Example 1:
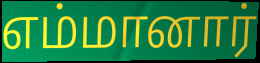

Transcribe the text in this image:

எம்மானார்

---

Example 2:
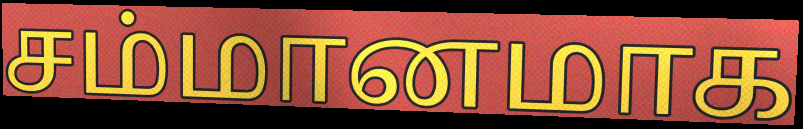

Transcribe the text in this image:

சம்மானமாக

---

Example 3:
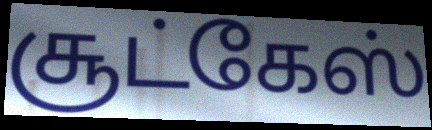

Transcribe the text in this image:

சூட்கேஸ்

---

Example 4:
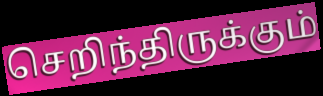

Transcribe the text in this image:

செறிந்திருக்கும்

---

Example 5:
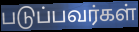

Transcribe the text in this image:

படுப்பவர்கள்